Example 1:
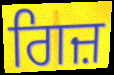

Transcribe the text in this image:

ਗਿਜ਼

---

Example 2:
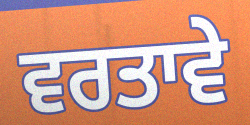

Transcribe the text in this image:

ਵਰਤਾਵੇ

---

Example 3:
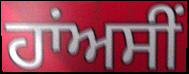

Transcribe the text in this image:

ਹਾਂਅਸੀਂ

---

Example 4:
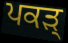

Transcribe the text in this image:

ਪਕੜ੍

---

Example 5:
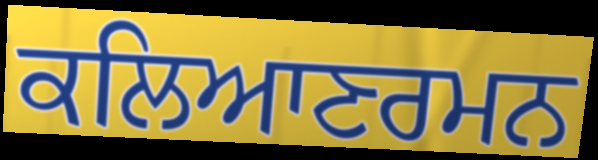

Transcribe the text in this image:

ਕਲਿਆਣਰਮਨ